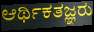
ಆರ್ಥಿಕತಜ್ಞರು